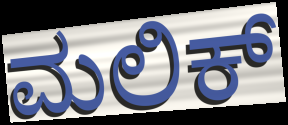
ಮಲಿಕ್